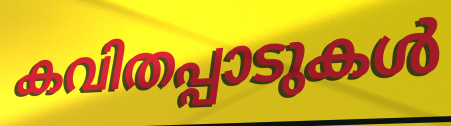
കവിതപ്പാടുകൾ